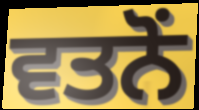
ਵਤਨੋਂ